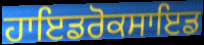
ਹਾਇਡਰੋਕਸਾਇਡ